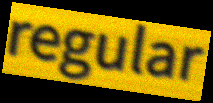
regular